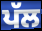
ਪੱਲ